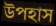
উপহাস